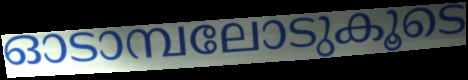
ഓടാമ്പലോടുകൂടെ